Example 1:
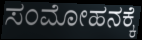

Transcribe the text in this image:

ಸಂಮೋಹನಕ್ಕೆ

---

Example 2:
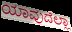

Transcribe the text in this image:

ಯಾವುದೆಲ್ಲಾ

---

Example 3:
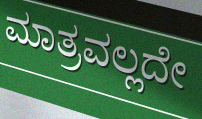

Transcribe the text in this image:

ಮಾತ್ರವಲ್ಲದೇ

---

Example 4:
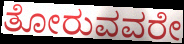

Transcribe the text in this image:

ತೋರುವವರೇ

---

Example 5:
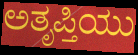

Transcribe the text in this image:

ಅತೃಪ್ತಿಯು